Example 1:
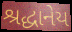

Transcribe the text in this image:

શ્રદ્ધાનેય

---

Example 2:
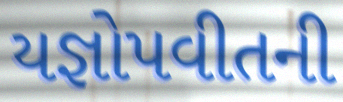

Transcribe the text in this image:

યજ્ઞોપવીતની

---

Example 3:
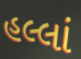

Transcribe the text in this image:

હલ્લાં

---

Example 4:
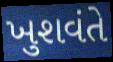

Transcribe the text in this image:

ખુશવંતે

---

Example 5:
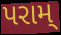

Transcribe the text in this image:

પરામ્